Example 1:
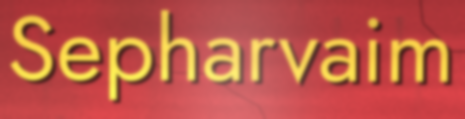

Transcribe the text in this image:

Sepharvaim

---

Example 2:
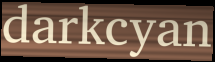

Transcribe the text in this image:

darkcyan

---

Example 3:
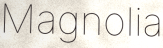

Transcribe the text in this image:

Magnolia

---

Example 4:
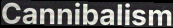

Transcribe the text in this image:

Cannibalism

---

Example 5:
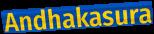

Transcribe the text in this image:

Andhakasura